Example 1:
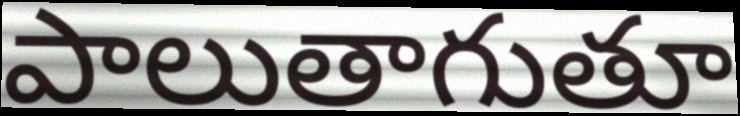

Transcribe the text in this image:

పాలుతాగుతూ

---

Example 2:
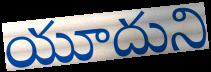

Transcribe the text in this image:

యూదుని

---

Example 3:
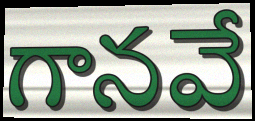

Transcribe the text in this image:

గానవే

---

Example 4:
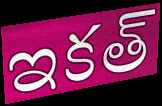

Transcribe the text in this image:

ఇకత్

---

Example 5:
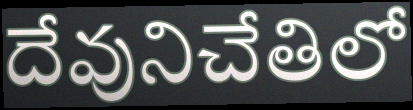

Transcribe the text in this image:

దేవునిచేతిలో